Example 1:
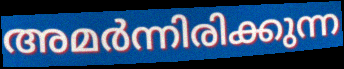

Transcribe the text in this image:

അമർന്നിരിക്കുന്ന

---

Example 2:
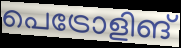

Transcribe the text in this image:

പെട്രോളിങ്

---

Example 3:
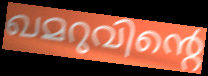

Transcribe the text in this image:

ഖമറുവിന്റെ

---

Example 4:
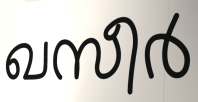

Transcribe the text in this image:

ഖസീർ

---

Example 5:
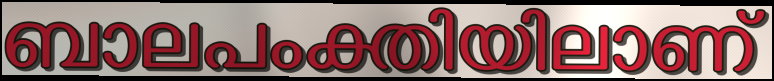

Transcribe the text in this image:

ബാലപംക്തിയിലാണ്